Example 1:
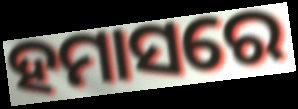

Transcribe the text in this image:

ହମାସରେ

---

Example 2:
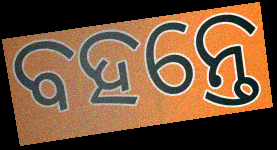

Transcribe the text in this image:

ବହନ୍ତେ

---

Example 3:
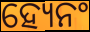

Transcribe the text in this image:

ହ୍ୟେନଂ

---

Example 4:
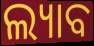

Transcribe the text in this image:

ଲ୍ୟାବ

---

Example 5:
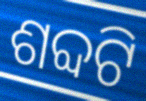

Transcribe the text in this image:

ଶବ୍ଦଟି